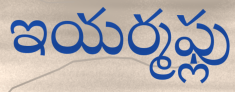
ఇయర్మఫ్లు